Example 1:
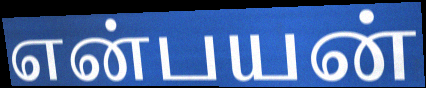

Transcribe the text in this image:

என்பயன்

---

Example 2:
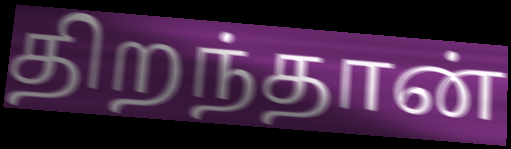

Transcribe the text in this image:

திறந்தான்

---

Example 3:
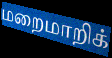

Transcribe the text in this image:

மறைமாறிக்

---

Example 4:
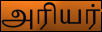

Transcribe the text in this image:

அரியர்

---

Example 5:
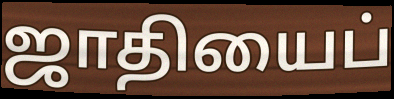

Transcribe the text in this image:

ஜாதியைப்